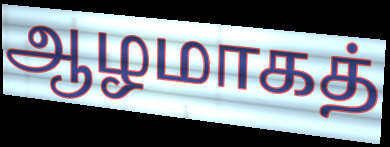
ஆழமாகத்